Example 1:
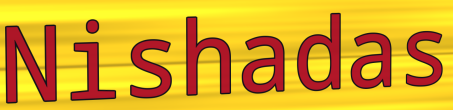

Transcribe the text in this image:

Nishadas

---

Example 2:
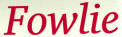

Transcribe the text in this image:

Fowlie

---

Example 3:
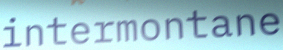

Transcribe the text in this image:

intermontane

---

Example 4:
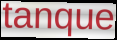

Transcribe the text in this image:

tanque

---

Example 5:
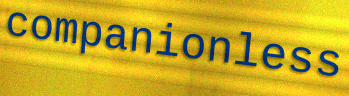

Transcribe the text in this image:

companionless